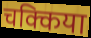
चक्किया